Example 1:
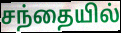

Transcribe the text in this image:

சந்தையில்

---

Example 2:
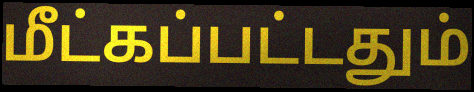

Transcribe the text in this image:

மீட்கப்பட்டதும்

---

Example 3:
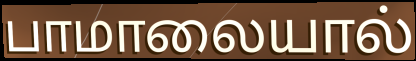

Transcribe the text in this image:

பாமாலையால்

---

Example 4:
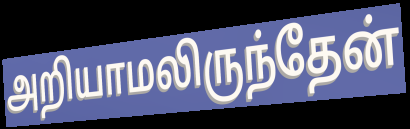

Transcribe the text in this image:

அறியாமலிருந்தேன்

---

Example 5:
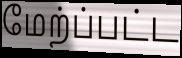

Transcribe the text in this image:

மேற்ப்பட்ட